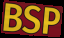
BSP